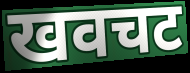
खवचट